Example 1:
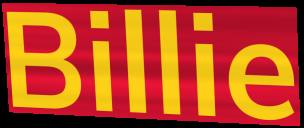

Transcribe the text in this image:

Billie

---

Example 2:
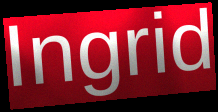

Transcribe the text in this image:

Ingrid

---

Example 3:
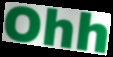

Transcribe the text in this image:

Ohh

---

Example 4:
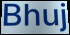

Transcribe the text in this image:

Bhuj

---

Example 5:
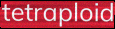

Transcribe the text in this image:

tetraploid